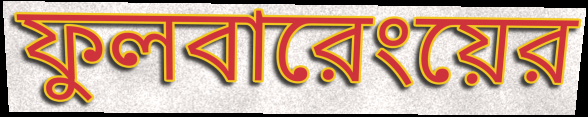
ফুলবারেংয়ের